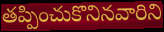
తప్పించుకొనినవారిని